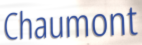
Chaumont